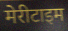
मेरीटाइम